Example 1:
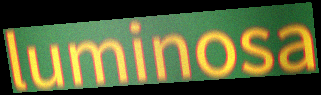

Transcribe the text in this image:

luminosa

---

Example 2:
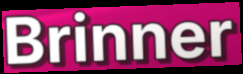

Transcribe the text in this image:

Brinner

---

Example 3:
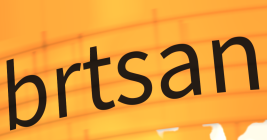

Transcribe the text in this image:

brtsan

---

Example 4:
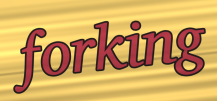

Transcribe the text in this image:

forking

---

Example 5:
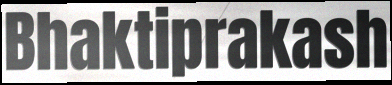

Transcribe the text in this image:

Bhaktiprakash